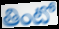
తింటో